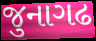
જુનાગઢ